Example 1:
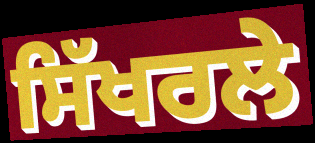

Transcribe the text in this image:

ਸਿੱਖਰਲੇ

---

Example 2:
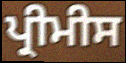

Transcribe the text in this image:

ਪ੍ਰੀਮੀਸ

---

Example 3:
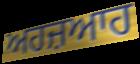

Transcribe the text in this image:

ਅਹਜ਼ਆਹ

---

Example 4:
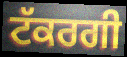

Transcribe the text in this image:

ਟੱਕਰਗੀ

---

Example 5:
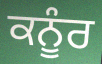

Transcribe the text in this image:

ਕਨੂੰਰ